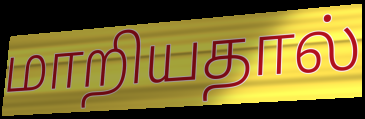
மாறியதால்